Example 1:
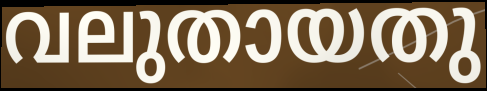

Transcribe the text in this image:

വലുതായതു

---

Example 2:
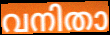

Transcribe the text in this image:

വനിതാ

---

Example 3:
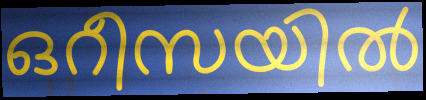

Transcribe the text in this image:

ഒറീസയിൽ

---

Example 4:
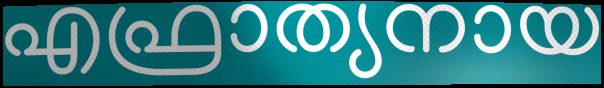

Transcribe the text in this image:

എഫ്രാത്യനായ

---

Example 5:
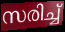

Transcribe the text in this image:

സരിച്ച്